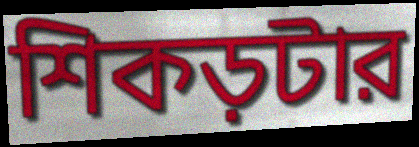
শিকড়টার